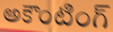
అకౌంటింగ్